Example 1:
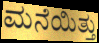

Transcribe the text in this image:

ಮನೆಯಿತ್ತು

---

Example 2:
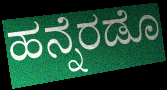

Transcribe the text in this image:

ಹನ್ನೆರಡೊ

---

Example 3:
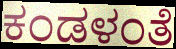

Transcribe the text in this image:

ಕಂಡಳಂತೆ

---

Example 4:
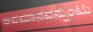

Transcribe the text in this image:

ಅವಮಾನವನ್ನುಂಟು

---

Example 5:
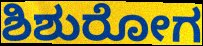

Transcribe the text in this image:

ಶಿಶುರೋಗ